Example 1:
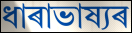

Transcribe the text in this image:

ধাৰাভাষ্যৰ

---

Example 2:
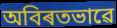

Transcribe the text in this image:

অবিৰতভাৱে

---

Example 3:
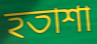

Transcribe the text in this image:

হতাশা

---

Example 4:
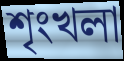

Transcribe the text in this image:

শৃংখলা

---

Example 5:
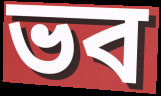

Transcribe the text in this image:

ভব